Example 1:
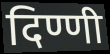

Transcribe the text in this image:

दिण्णी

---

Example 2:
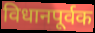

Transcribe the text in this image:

विधानपूर्वक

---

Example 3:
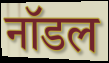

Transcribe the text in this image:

नॉडल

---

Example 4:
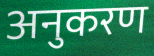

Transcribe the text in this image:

अनुकरण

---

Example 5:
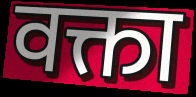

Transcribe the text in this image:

वक्ता